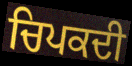
ਚਿਪਕਦੀ